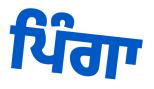
ਪਿੰਗਾ